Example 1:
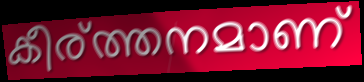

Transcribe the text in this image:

കീര്ത്തനമാണ്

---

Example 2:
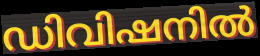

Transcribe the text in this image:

ഡിവിഷനിൽ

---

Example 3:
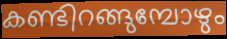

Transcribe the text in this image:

കണ്ടിറങ്ങുമ്പോഴും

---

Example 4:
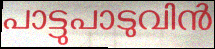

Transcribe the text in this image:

പാട്ടുപാടുവിൻ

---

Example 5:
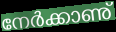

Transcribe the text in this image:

നേർക്കാണു്